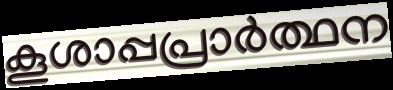
കൂശാപ്പപ്രാർത്ഥന